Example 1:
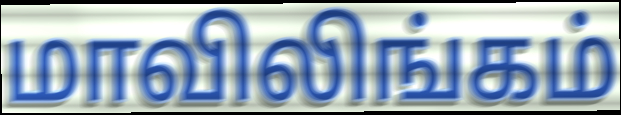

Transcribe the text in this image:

மாவிலிங்கம்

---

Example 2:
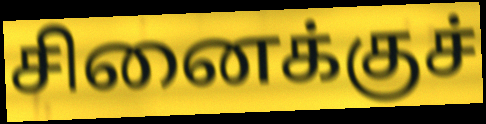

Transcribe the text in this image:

சினைக்குச்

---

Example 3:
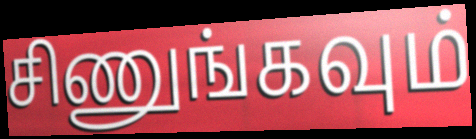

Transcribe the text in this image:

சிணுங்கவும்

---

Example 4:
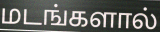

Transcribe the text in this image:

மடங்களால்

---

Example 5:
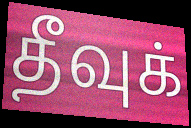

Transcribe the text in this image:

தீவுக்